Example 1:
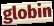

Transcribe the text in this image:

globin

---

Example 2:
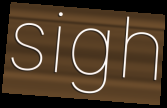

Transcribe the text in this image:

sigh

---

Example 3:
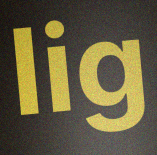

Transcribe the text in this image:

lig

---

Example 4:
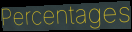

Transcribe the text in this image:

Percentages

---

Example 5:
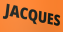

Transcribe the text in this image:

JACQUES